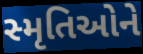
સ્મૃતિઓને